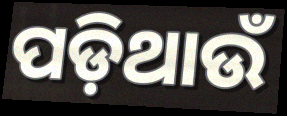
ପଡ଼ିଥାଉଁ